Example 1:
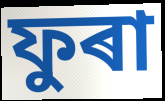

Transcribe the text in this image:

ফুৰা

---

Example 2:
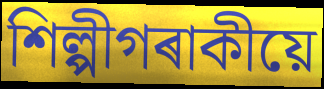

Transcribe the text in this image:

শিল্পীগৰাকীয়ে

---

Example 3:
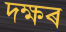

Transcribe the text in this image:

দক্ষৰ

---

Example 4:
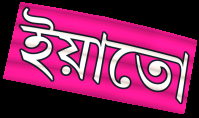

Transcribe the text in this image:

ইয়াতো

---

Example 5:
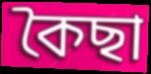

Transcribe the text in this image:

কৈছা